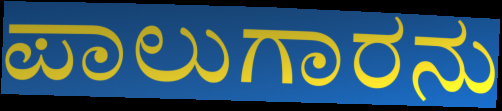
ಪಾಲುಗಾರನು